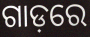
ଗାଡ଼ରେ